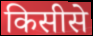
किसीसे